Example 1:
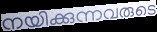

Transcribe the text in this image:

നയിക്കുന്നവരുടെ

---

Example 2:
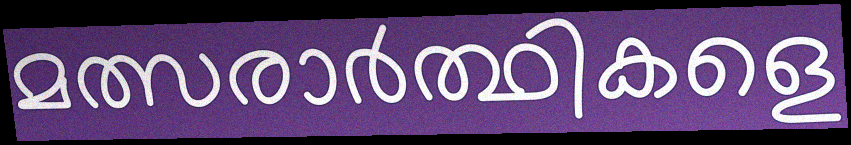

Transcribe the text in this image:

മത്സരാർത്ഥികളെ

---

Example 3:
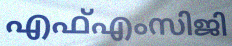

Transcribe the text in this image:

എഫ്എംസിജി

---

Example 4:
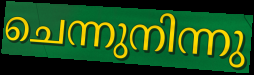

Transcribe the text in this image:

ചെന്നുനിന്നു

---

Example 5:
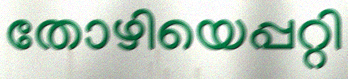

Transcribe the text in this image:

തോഴിയെപ്പറ്റി